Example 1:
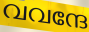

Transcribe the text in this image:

വവന്ദേ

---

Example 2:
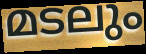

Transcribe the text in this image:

മടലും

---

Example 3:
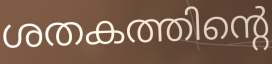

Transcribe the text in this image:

ശതകത്തിന്റെ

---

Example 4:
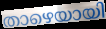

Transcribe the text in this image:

താഴെയായി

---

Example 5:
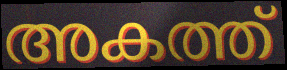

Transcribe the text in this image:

അകത്ത്